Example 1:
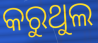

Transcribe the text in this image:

କରୁଥୁଲ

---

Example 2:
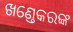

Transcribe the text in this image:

ଖଣ୍ଡେକରଙ୍କ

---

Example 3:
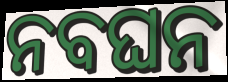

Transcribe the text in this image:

ନବଘନ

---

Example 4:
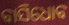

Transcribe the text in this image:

ବାସିଧୋବ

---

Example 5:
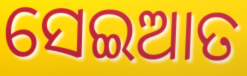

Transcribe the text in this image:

ସେଇଆତ